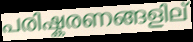
പരിഷ്കരണങ്ങളില്